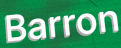
Barron